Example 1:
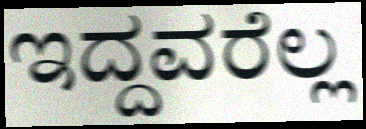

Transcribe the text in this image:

ಇದ್ದವರೆಲ್ಲ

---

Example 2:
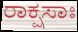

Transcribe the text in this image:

ರಾಕ್ಷಸಾಃ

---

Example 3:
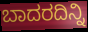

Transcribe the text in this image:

ಬಾದರದಿನ್ನಿ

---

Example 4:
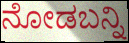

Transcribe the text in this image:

ನೋಡಬನ್ನಿ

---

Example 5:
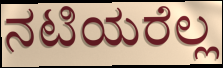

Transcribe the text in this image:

ನಟಿಯರೆಲ್ಲ